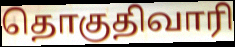
தொகுதிவாரி